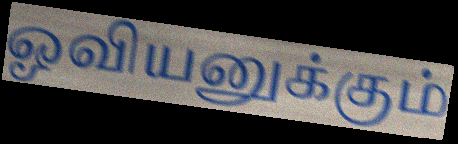
ஓவியனுக்கும்